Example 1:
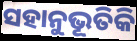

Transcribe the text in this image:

ସହାନୁଭୂତିକି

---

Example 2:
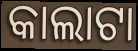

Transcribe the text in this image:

କାଲାଟା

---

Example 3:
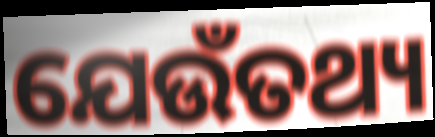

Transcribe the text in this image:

ଯେଉଁତଥ୍ୟ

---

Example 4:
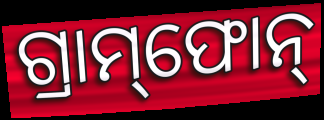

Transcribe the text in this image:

ଗ୍ରାମ୍‌ଫୋନ୍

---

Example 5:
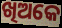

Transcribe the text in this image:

ଖିଅକେ